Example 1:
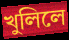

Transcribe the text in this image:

খুলিলে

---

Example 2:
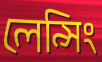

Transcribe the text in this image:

লেন্সিং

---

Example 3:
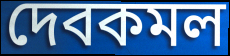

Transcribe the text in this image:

দেবকমল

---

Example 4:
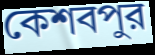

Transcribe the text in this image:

কেশবপুর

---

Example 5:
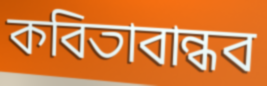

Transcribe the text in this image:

কবিতাবান্ধব